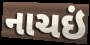
નાચઇં